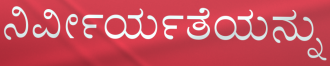
ನಿರ್ವೀರ್ಯತೆಯನ್ನು